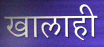
खालाही